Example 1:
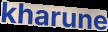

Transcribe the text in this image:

kharune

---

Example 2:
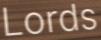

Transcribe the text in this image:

Lords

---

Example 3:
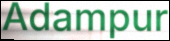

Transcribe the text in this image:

Adampur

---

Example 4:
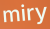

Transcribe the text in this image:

miry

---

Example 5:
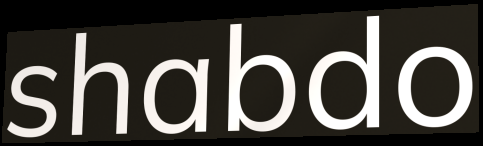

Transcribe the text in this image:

shabdo